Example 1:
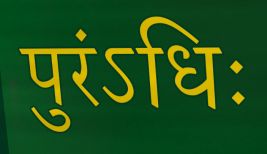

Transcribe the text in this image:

पुरंऽधिः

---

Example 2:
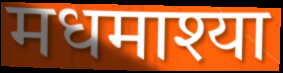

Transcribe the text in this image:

मधमाश्‍या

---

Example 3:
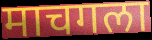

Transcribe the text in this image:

माचगला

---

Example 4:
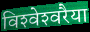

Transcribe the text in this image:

विश्वेश्वरैया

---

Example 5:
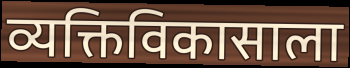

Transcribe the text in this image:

व्यक्तिविकासाला